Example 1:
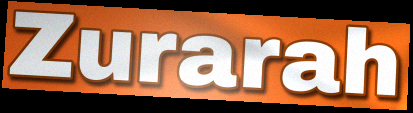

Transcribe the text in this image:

Zurarah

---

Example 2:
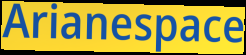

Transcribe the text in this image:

Arianespace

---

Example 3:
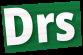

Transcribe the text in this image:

Drs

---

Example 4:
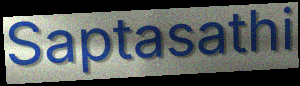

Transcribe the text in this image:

Saptasathi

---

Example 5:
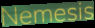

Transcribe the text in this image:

Nemesis